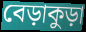
বেড়াকুড়া